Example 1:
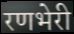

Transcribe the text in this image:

रणभेरी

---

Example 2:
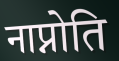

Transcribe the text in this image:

नाप्नोति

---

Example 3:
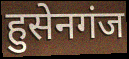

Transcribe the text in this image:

हुसेनगंज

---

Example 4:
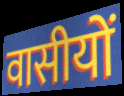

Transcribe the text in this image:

वासीयों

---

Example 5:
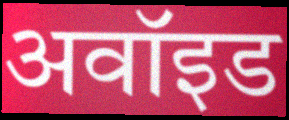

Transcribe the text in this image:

अवॉइड